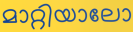
മാറ്റിയാലോ